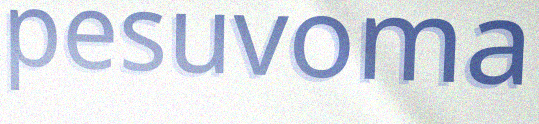
pesuvoma